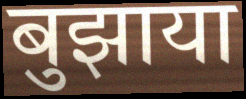
बुझाया